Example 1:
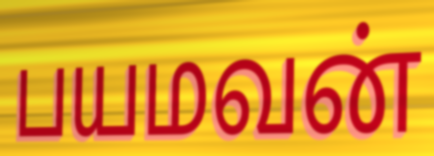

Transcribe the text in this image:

பயமவன்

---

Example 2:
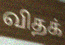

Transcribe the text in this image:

விதக்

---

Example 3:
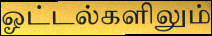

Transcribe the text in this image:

ஓட்டல்களிலும்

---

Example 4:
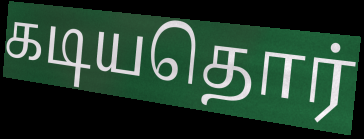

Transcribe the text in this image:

கடியதொர்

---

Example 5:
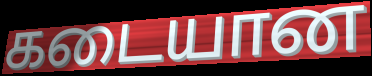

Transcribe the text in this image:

கடையான